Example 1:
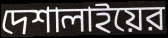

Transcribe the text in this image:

দেশালাইয়ের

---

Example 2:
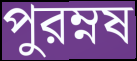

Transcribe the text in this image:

পুরম্নষ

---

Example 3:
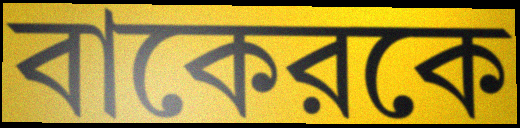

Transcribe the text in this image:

বাকেরকে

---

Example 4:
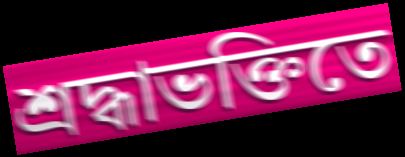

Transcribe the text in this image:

শ্রদ্ধাভক্তিতে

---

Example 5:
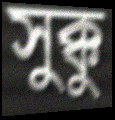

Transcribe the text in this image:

সুক্কু